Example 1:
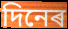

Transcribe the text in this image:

দিনেৰ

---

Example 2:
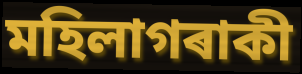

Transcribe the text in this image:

মহিলাগৰাকী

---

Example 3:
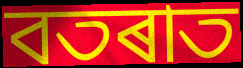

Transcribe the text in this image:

বতৰাত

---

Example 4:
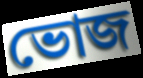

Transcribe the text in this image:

ভোজ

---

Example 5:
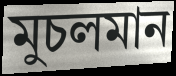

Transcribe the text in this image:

মুচলমান